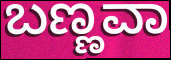
ಬಣ್ಣವಾ